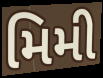
મિમી